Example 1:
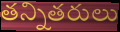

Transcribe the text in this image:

తన్నితరులు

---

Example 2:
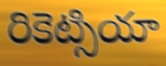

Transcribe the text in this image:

రికెట్సియా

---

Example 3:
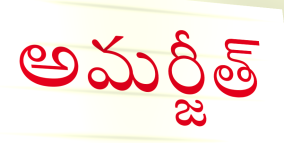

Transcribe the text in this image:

అమర్జీత్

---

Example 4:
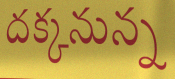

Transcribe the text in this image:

దక్కనున్న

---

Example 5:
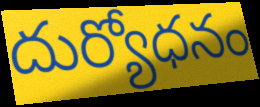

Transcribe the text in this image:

దుర్యోధనం